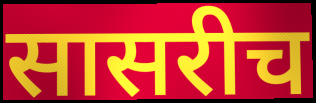
सासरीच